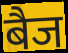
बैज